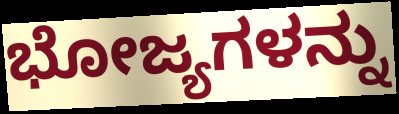
ಭೋಜ್ಯಗಳನ್ನು